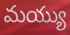
మయ్యు